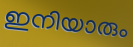
ഇനിയാരും